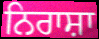
ਨਿਰਾਸ਼ਾ